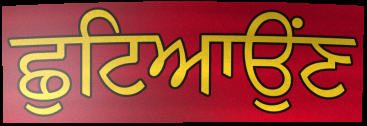
ਛੁਟਿਆਉਂਣ